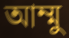
আম্মু